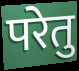
परेतु